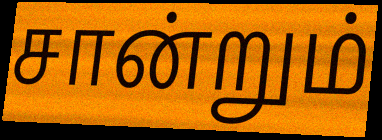
சான்றும்